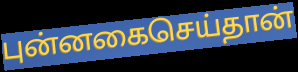
புன்னகைசெய்தான்